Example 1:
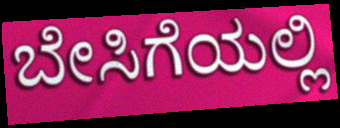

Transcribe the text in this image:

ಬೇಸಿಗೆಯಲ್ಲಿ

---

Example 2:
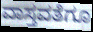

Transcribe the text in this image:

ವಾಸ್ತವತೆಗೂ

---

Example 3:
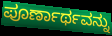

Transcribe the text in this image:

ಪೂರ್ಣಾರ್ಥವನ್ನು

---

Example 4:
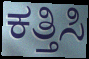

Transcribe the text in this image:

ಕತ್ತಿಸಿ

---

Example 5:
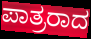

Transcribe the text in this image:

ಪಾತ್ರರಾದ